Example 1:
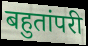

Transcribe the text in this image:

बहुतांपरी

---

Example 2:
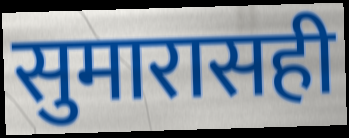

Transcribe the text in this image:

सुमारासही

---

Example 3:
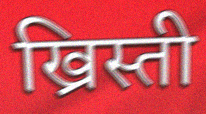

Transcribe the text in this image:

ख्रिस्ती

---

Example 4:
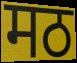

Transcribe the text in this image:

मठ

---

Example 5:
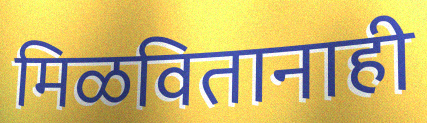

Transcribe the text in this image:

मिळवितानाही